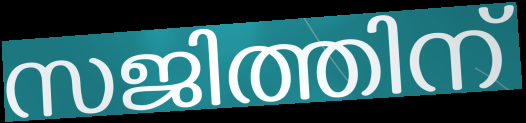
സജിത്തിന്